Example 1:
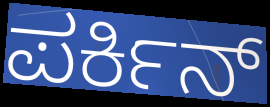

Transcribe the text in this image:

ಪರ್ಕಿನ್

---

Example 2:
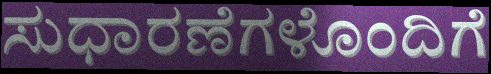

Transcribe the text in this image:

ಸುಧಾರಣೆಗಳೊಂದಿಗೆ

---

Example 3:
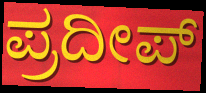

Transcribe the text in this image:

ಪ್ರದೀಪ್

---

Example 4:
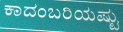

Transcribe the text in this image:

ಕಾದಂಬರಿಯಷ್ಟು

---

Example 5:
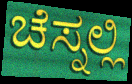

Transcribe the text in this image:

ಚೆಸ್ನಲ್ಲಿ